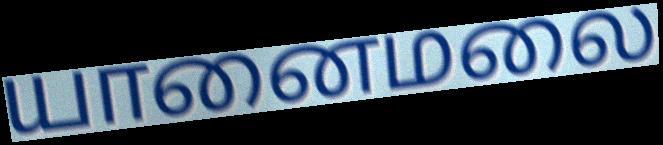
யானைமலை